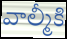
వాల్మీకి